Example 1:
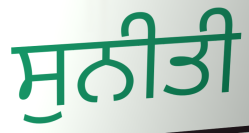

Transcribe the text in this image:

ਸੁਨੀਤੀ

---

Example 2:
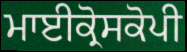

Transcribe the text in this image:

ਮਾਈਕ੍ਰੋਸਕੋਪੀ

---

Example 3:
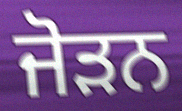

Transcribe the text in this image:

ਜੋੜਨ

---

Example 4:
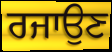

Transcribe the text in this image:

ਰਜਾਉਣ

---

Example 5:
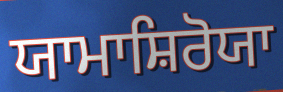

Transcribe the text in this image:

ਯਾਮਾਸ਼ਿਰੋਯਾ